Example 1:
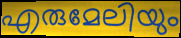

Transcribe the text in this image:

എരുമേലിയും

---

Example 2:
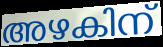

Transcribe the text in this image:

അഴകിന്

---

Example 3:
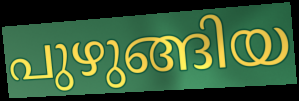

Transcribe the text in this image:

പുഴുങ്ങിയ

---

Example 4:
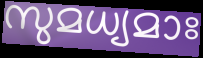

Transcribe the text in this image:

സുമധ്യമാഃ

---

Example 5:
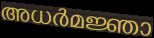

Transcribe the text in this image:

അധർമജ്ഞാ